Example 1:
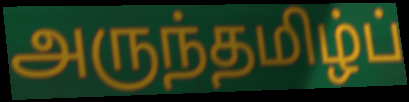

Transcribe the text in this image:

அருந்தமிழ்ப்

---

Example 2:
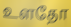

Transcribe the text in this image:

உளதோ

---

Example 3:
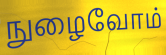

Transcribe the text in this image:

நுழைவோம்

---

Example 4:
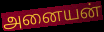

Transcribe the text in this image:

அனையன்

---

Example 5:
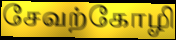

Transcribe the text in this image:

சேவற்கோழி